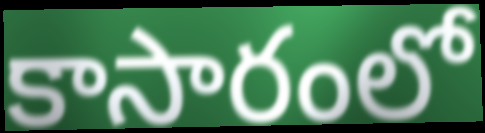
కాసారంలో